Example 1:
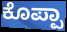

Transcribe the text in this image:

ಕೊಪ್ಪಾ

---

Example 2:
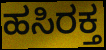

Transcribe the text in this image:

ಹಸಿರಕ್ತ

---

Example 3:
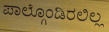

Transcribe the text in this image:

ಪಾಲ್ಗೊಂಡಿರಲಿಲ್ಲ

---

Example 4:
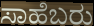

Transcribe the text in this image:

ಸಾಹೆಬರು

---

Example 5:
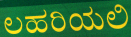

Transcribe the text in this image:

ಲಹರಿಯಲಿ